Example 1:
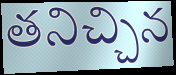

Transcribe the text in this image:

తనిచ్చిన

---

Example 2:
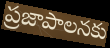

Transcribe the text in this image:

ప్రజాపాలనకు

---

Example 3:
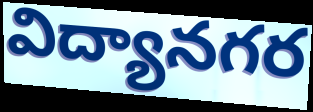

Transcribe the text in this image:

విద్యానగర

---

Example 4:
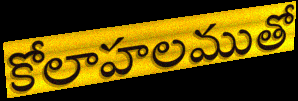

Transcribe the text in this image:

కోలాహలముతో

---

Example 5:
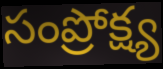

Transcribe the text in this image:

సంప్రోక్ష్య